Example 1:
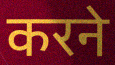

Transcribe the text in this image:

करने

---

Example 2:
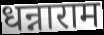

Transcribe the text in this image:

धन्नाराम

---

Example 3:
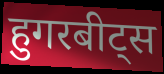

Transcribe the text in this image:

हुगरबीट्स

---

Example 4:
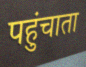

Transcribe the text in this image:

पहुंचाता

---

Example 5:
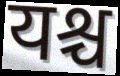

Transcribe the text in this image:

यश्च